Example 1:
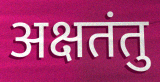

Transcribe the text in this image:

अक्षतंतु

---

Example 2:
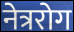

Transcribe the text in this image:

नेत्ररोग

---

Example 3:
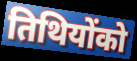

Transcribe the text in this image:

तिथियोंको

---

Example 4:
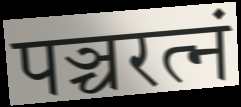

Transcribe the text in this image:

पञ्चरत्नं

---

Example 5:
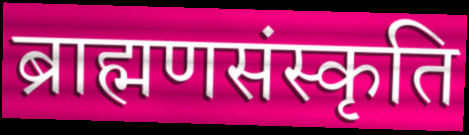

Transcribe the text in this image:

ब्राह्मणसंस्कृति